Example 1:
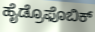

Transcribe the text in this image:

ಹೈಡ್ರೊಫೊಬಿಕ್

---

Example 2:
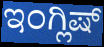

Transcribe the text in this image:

ಇಂಗ್ಲಿಷ್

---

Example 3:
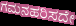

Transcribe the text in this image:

ಗಮನಹರಿಸದೇ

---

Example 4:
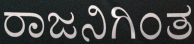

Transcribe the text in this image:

ರಾಜನಿಗಿಂತ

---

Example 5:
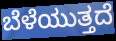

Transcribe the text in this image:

ಬೆಳೆಯುತ್ತದೆ